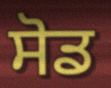
ਸੋਡ